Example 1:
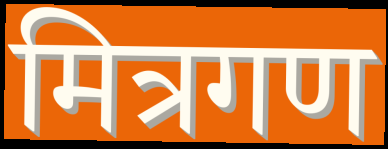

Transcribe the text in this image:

मित्रगण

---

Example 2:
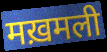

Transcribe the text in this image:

मख़मली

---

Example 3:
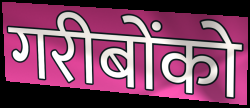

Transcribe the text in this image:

गरीबोंको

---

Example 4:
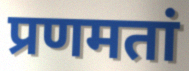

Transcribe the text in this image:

प्रणमतां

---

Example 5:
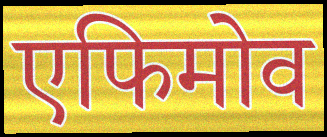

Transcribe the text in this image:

एफिमोव